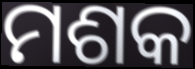
ମଶକ